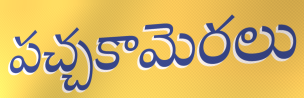
పచ్చకామెరలు